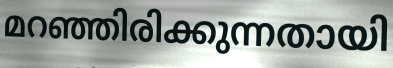
മറഞ്ഞിരിക്കുന്നതായി